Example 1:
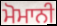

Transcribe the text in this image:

ਮੋਮਾਨੀ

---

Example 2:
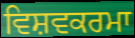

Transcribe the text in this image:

ਵਿਸ਼ਵਕਰਮਾ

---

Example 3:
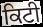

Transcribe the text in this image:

ਕਿਟੀ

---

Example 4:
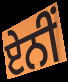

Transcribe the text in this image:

ਏਨੀਂ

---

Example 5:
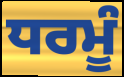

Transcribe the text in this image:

ਧਰਮੂੰ